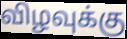
விழவுக்கு